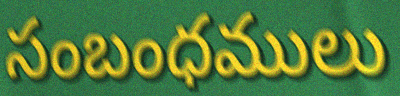
సంబంధములు